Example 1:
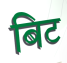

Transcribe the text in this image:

बिट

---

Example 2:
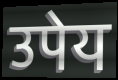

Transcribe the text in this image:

उपेय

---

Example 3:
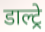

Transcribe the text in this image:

डाल्ट्रे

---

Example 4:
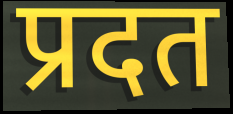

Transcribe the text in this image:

प्रदत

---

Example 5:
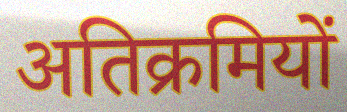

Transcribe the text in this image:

अतिक्रमियों